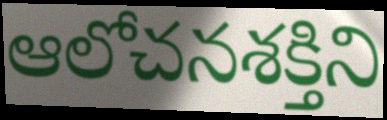
ఆలోచనశక్తిని